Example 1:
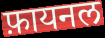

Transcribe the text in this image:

फ़ायनल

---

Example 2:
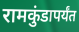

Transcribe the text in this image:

रामकुंडापर्यंत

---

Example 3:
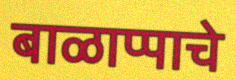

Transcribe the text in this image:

बाळाप्पाचे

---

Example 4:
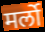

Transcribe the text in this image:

मर्लो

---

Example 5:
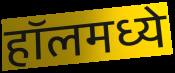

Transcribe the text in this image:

हॉलमध्ये